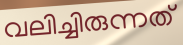
വലിച്ചിരുന്നത്